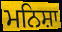
ਮਨਿਸ਼ਾ